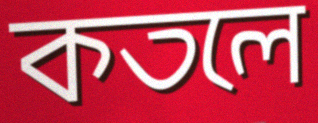
কতলে